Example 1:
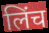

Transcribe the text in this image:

लिंच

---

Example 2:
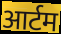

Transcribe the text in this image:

आर्टम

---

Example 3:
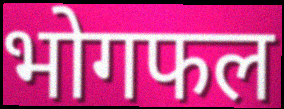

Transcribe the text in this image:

भोगफल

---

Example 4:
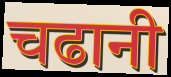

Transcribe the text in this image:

चढानी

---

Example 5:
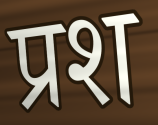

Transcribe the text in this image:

प्रश